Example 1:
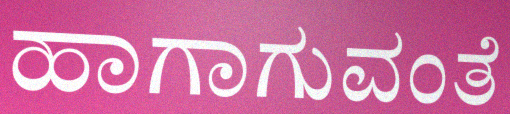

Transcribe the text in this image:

ಹಾಗಾಗುವಂತೆ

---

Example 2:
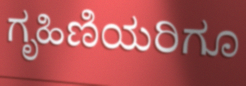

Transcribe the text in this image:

ಗೃಹಿಣಿಯರಿಗೂ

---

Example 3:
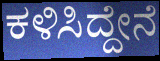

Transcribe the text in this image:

ಕಳಿಸಿದ್ದೇನೆ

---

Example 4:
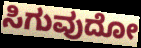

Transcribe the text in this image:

ಸಿಗುವುದೋ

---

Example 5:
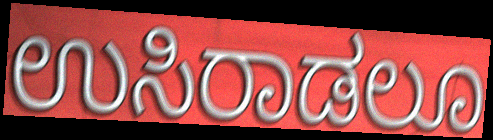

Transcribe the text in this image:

ಉಸಿರಾಡಲೂ